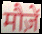
मौज़ें